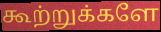
கூற்றுக்களே